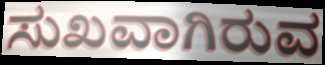
ಸುಖವಾಗಿರುವ